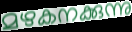
മഴകനക്കുന്നു